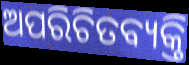
ଅପରିଚିତବ୍ୟକ୍ତି